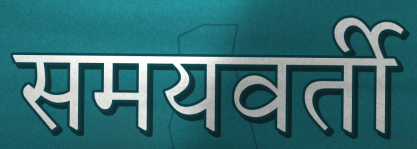
समयवर्ती